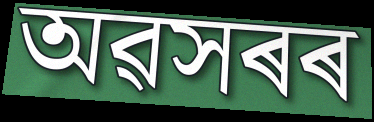
অৱসৰৰ